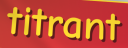
titrant